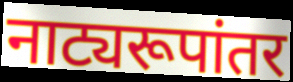
नाट्यरूपांतर